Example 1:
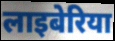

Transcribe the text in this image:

लाइबेरिया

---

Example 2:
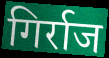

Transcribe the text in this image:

गिर्राज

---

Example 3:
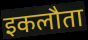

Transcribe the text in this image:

इकलौता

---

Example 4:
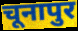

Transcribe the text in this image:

चूनापुर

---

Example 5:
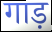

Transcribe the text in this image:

गाड़